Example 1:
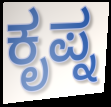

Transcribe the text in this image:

ಕೃಪ್ನ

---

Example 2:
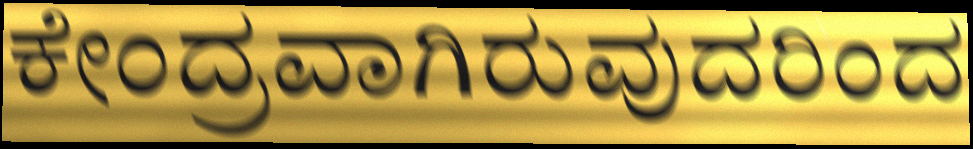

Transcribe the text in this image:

ಕೇಂದ್ರವಾಗಿರುವುದರಿಂದ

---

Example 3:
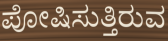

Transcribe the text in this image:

ಪೋಷಿಸುತ್ತಿರುವ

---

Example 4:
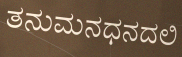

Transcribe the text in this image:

ತನುಮನಧನದಲಿ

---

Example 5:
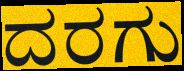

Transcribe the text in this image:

ದರಗು